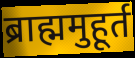
ब्राह्ममुहूर्त